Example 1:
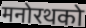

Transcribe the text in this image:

मनोरथको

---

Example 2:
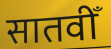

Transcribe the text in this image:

सातवीँ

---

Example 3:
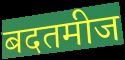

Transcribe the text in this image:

बदतमीज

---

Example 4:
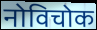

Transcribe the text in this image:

नोविचोक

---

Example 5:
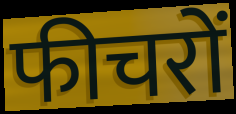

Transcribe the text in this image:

फीचरों